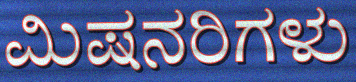
ಮಿಷನರಿಗಳು